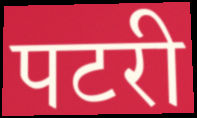
पटरी